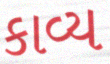
કાવ્ય